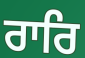
ਰਾਰਿ